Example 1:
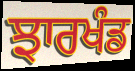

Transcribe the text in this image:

ਝਾਰਖੰਡ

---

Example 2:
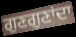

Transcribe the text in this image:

ਗੁਣਗੁਣਾਂਦਾ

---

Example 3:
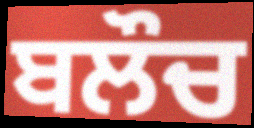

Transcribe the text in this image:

ਬਲੌਚ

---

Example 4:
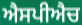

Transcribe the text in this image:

ਐਸਪੀਐਚ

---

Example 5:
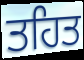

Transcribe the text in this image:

ਤਹਿਤ